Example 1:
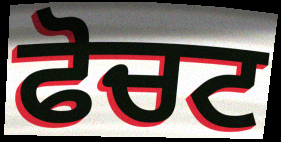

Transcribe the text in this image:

ਫੋਚਟ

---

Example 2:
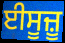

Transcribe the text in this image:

ਈਸੂਜ਼ੂ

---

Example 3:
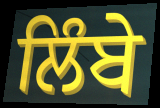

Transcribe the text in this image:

ਲਿੰਬੇ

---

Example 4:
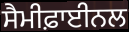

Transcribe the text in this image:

ਸੈਮੀਫ਼ਾਈਨਲ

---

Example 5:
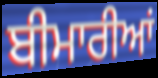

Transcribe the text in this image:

ਬੀਮਾਰੀਆਂ